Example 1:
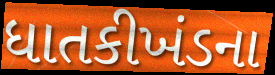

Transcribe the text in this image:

ધાતકીખંડના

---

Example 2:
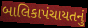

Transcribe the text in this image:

બાલિકાપંચાયતનું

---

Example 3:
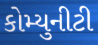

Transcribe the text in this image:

કોમ્યુનીટી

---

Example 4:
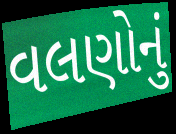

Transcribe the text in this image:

વલણોનું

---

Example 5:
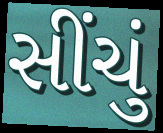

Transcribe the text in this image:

સીંચું